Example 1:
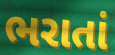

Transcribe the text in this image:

ભરાતાં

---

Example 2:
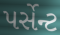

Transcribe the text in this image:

પર્સેન્ટ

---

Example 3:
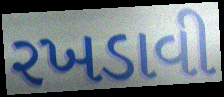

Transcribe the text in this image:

રખડાવી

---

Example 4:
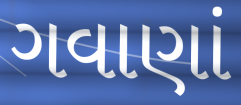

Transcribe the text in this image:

ગવાણાં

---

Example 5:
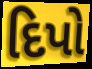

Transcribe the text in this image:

દિપો